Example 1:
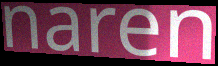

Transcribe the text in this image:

naren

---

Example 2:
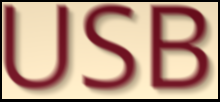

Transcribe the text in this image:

USB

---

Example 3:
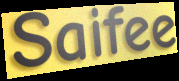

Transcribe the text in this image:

Saifee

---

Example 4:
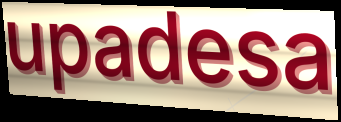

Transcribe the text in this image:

upadesa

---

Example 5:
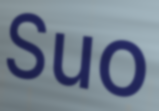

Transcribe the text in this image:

Suo